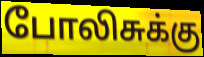
போலிசுக்கு